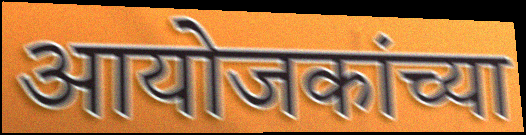
आयोजकांच्या